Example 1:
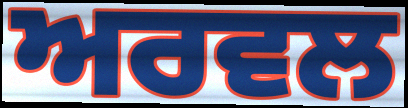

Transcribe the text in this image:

ਅਰਵਲ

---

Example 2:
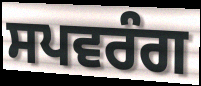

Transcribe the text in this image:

ਸਪਵਰੰਗ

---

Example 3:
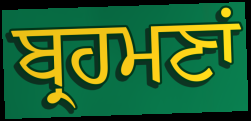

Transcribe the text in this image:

ਬ੍ਰਹਮਣਾਂ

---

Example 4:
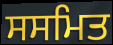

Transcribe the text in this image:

ਸਸਮਿਤ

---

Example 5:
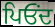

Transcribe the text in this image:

ਪਿਓਂਦ